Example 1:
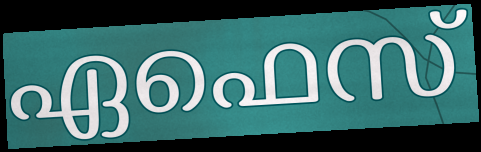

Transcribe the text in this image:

ഏഫെസ്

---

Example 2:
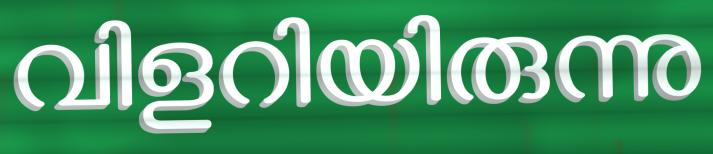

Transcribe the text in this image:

വിളറിയിരുന്നു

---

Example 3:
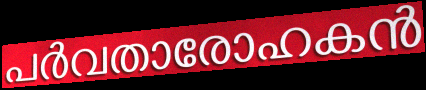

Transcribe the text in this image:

പർവതാരോഹകൻ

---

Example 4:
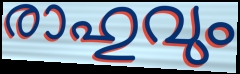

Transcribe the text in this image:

രാഹുവും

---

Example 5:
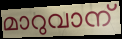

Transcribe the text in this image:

മാറുവാന്